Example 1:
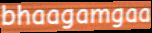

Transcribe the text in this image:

bhaagamgaa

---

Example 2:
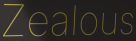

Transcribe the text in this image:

Zealous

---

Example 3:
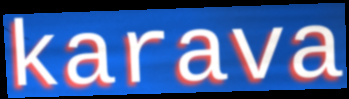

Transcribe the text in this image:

karava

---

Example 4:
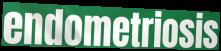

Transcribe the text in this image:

endometriosis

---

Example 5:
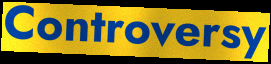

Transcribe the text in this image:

Controversy